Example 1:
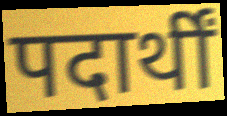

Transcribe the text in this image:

पदार्थीं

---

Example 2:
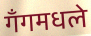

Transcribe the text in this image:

गँगमधले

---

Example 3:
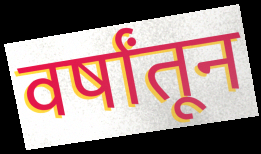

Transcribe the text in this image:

वर्षांतून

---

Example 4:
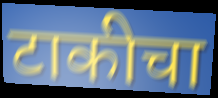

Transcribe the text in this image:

टाकीचा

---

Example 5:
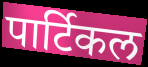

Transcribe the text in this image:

पार्टिकल